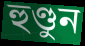
হুণ্ডুন